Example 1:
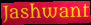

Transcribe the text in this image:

Jashwant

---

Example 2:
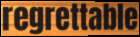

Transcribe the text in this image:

regrettable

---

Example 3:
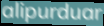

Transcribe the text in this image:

alipurduar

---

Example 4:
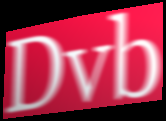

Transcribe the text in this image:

Dvb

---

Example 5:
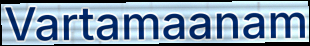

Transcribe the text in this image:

Vartamaanam